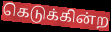
கெடுக்கின்ற